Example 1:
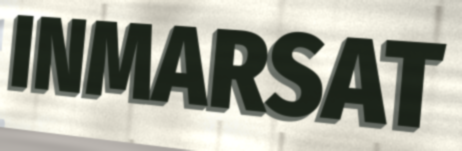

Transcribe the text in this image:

INMARSAT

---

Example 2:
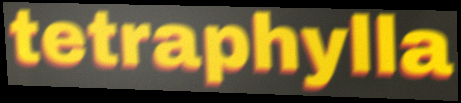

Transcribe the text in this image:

tetraphylla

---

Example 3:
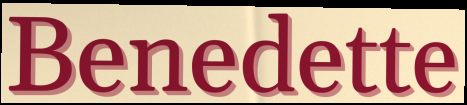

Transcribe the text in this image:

Benedette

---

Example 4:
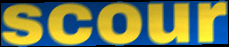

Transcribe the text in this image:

scour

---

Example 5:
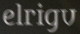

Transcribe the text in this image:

elrigu